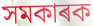
সমকাৰক